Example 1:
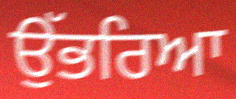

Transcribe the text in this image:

ਉੱਭਰਿਆ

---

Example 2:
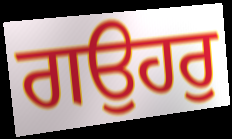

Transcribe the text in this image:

ਗਉਹਰੁ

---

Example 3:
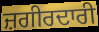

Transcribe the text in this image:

ਜ਼ਗੀਰਦਾਰੀ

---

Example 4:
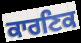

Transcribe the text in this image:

ਕਾਰਣਿਕ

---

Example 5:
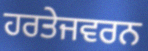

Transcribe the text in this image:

ਹਰਤੇਜਵਰਨ